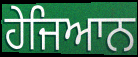
ਹੇਜਿਆਨ